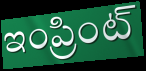
ఇంప్రింట్